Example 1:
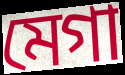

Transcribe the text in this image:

মেগা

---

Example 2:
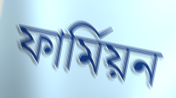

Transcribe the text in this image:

ফাৰ্মিয়ন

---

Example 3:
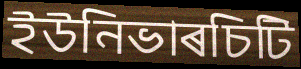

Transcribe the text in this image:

ইউনিভাৰচিটি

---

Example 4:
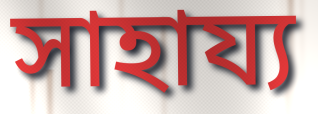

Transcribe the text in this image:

সাহায্য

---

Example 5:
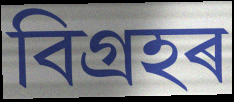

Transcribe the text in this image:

বিগ্ৰহৰ